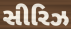
સીરિઝ